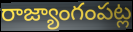
రాజ్యాంగంపట్ల